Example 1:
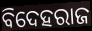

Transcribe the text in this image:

ବିଦେହରାଜ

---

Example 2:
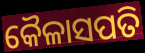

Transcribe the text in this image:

କୈଳାସପତି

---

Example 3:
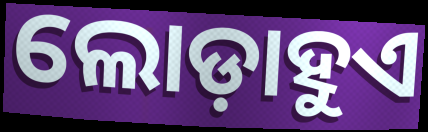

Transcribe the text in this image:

ଲୋଡ଼ାହୁଏ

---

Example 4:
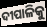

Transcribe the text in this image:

ଦୀପାଳିକୁ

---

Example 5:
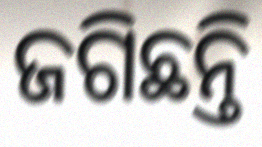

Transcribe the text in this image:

ଜଗିଛନ୍ତି